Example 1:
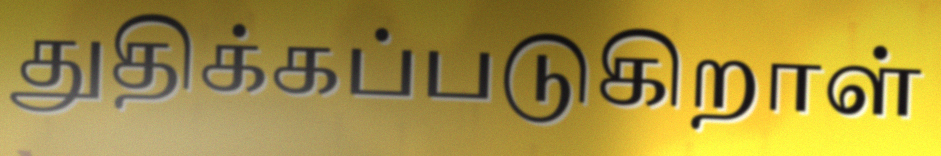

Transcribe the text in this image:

துதிக்கப்படுகிறாள்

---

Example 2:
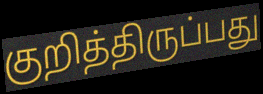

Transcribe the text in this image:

குறித்திருப்பது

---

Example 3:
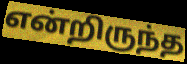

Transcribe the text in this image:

என்றிருந்த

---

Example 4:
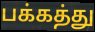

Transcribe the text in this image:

பக்கத்து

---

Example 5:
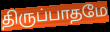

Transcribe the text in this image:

திருப்பாதமே